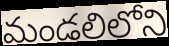
మండలిలోని